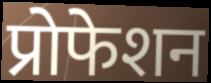
प्रोफेशन